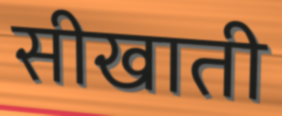
सीखाती